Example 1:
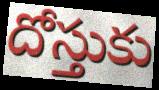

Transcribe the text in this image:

దోస్తుకు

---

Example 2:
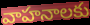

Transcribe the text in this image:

వాహనాలకు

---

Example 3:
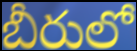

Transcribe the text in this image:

బీరులో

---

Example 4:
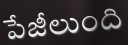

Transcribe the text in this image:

పేజీలుంది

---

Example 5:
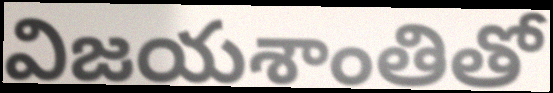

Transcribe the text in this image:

విజయశాంతితో